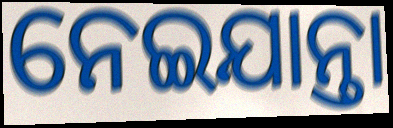
ନେଇଯାନ୍ତା